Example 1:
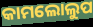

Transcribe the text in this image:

କାମଲୋଲୁପ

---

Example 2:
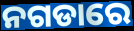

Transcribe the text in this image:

ନଗଡାରେ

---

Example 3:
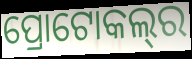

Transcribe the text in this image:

ପ୍ରୋଟୋକଲ୍‌ର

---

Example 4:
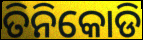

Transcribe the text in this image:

ତିନିକୋଡି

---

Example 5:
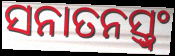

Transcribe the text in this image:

ସନାତନସ୍ତ୍ୱଂ